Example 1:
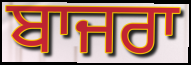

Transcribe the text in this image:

ਬਾਜਰਾ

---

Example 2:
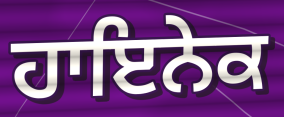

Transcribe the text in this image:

ਹਾਇਨੇਕ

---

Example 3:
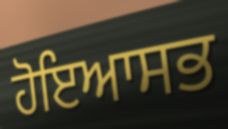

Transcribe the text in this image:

ਹੋਇਆਸਭ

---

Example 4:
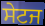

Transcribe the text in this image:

ਸੇਟਜ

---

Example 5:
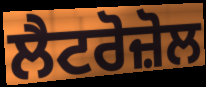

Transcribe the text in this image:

ਲੈਟਰੋਜ਼ੋਲ